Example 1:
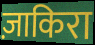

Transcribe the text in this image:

ज़ाकिरा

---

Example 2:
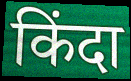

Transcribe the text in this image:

किंदा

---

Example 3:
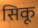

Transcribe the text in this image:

सिकू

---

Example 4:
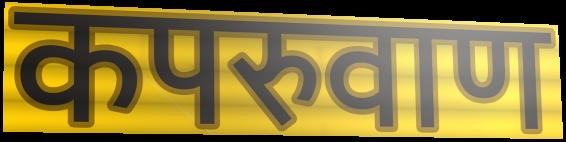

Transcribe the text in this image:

कपरुवाण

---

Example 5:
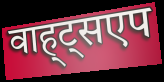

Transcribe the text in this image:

वाह्ट्सएप